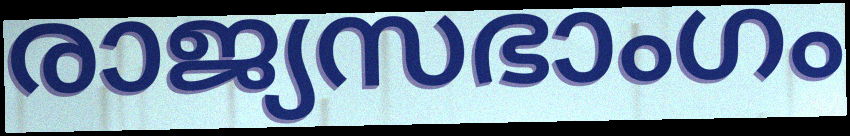
രാജ്യസഭാംഗം